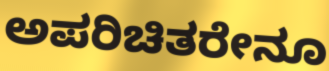
ಅಪರಿಚಿತರೇನೂ